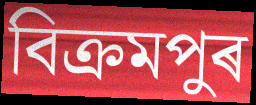
বিক্ৰমপুৰ